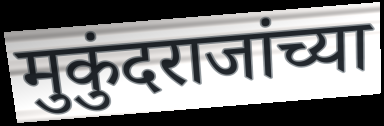
मुकुंदराजांच्या